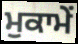
ਮੁਕਾਮੇਂ